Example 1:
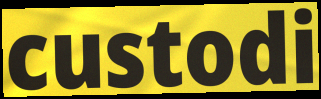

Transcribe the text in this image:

custodi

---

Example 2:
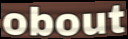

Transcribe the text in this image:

obout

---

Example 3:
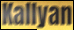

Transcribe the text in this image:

Kallyan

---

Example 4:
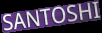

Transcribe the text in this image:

SANTOSHI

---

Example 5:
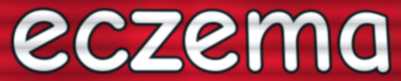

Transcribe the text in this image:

eczema